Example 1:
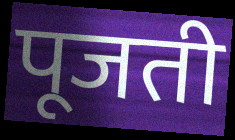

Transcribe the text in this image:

पूजती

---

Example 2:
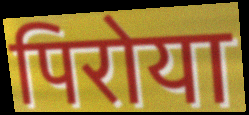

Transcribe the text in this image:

पिरोया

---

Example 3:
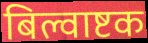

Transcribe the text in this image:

बिल्वाष्टक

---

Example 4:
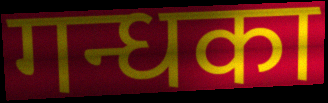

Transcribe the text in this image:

गन्धका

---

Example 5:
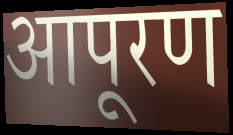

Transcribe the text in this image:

आपूरण